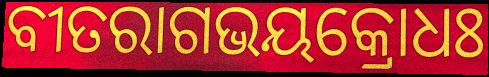
ବୀତରାଗଭୟକ୍ରୋଧଃ